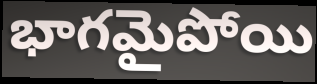
భాగమైపోయి